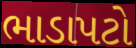
ભાડાપટો